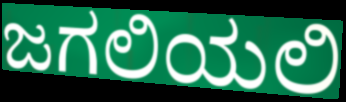
ಜಗಲಿಯಲಿ